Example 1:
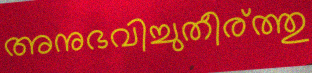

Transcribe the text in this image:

അനുഭവിച്ചുതീര്ത്തു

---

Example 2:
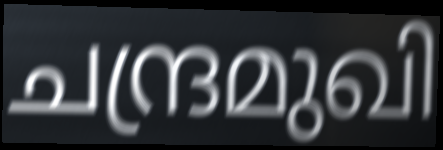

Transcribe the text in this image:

ചന്ദ്രമുഖി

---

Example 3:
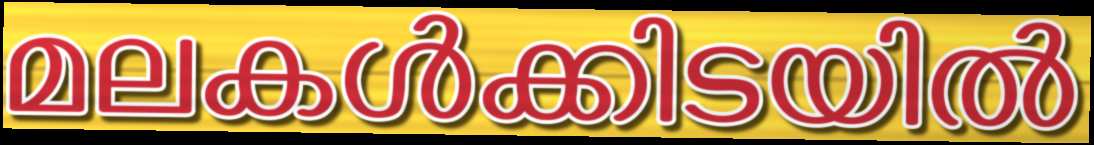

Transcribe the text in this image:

മലകൾക്കിടയിൽ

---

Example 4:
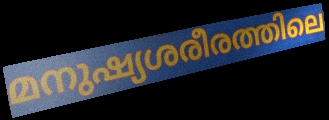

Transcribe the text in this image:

മനുഷ്യശരീരത്തിലെ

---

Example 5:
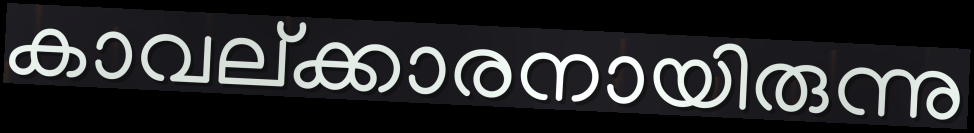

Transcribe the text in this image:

കാവല്ക്കാരനായിരുന്നു